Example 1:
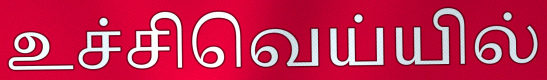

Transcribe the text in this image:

உச்சிவெய்யில்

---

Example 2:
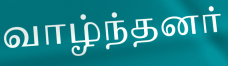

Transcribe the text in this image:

வாழ்ந்தனர்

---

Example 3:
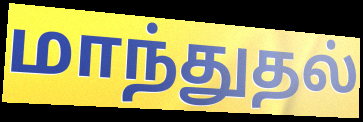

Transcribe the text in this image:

மாந்துதல்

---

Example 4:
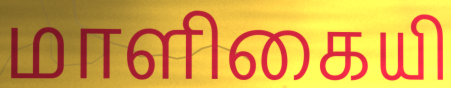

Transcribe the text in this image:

மாளிகையி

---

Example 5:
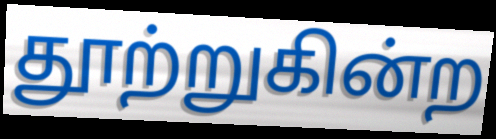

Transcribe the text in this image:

தூற்றுகின்ற